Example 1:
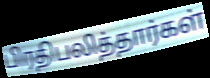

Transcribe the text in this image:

பிரதிபலித்தார்கள்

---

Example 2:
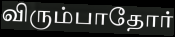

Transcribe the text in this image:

விரும்பாதோர்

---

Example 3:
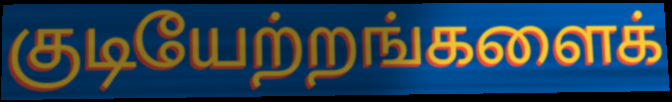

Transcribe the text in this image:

குடியேற்றங்களைக்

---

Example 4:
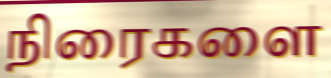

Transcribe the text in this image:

நிரைகளை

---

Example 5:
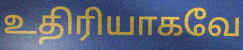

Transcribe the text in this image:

உதிரியாகவே